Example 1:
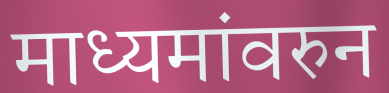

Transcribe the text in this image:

माध्यमांवरुन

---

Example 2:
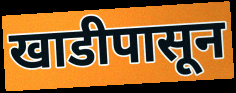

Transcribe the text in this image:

खाडीपासून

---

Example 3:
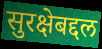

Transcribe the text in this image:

सुरक्षेबद्दल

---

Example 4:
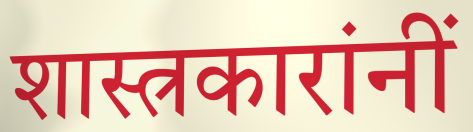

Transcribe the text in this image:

शास्त्रकारांनीं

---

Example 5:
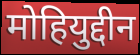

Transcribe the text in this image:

मोहियुद्दीन